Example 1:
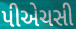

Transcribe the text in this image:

પીએચસી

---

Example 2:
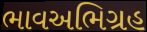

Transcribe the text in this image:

ભાવઅભિગ્રહ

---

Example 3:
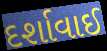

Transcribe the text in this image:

દર્શાવાઈ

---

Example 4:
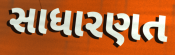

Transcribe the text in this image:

સાધારણત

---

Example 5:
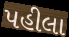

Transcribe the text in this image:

પહીલા